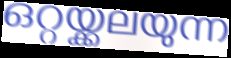
ഒറ്റയ്ക്കലയുന്ന